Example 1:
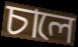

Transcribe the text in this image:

চালে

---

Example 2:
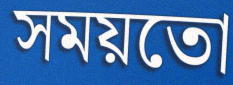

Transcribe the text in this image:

সময়তো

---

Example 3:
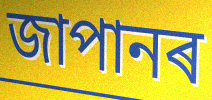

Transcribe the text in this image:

জাপানৰ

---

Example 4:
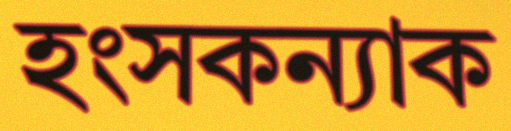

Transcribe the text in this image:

হংসকন্যাক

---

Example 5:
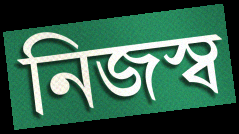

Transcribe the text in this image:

নিজস্ব